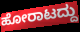
ಹೋರಾಟದ್ದು